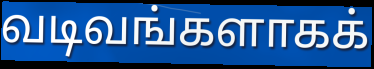
வடிவங்களாகக்